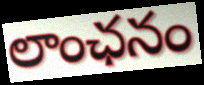
లాంఛనం